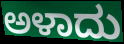
ಅಳಾದು